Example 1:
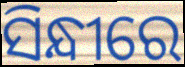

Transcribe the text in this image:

ସିନ୍ଧୀରେ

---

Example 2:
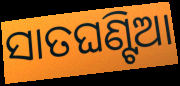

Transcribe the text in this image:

ସାତଘଣ୍ଟିଆ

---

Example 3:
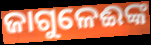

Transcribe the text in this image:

ଜାଗୁଳେଈଙ୍କ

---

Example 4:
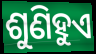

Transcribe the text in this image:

ଶୁଣିହୁଏ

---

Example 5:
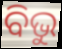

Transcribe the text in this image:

ବିଭୁ